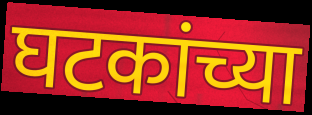
घटकांच्या